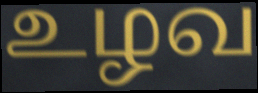
உழவ